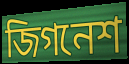
জিগনেশ